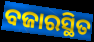
ବଜାରସ୍ଥିତ